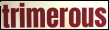
trimerous